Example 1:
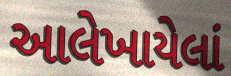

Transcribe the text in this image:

આલેખાયેલાં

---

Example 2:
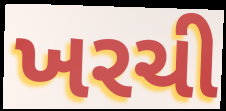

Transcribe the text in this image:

ખરચી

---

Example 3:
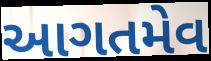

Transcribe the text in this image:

આગતમેવ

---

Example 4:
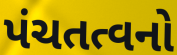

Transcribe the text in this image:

પંચતત્વનો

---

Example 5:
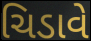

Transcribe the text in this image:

ચિડાવે